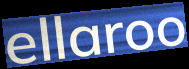
ellaroo